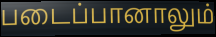
படைப்பானாலும்